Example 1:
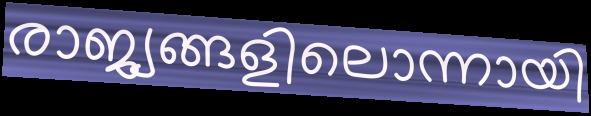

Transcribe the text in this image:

രാജ്യങ്ങളിലൊന്നായി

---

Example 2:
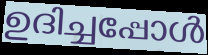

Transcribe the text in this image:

ഉദിച്ചപ്പോൾ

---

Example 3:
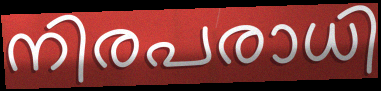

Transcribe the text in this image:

നിരപരാധി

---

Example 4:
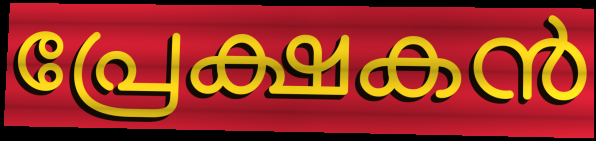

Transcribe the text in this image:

പ്രേക്ഷകൻ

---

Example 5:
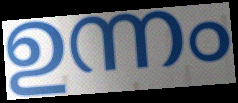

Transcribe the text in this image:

ഉന്നം